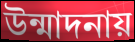
উন্মাদনায়